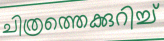
ചിത്രത്തെക്കുറിച്ച്